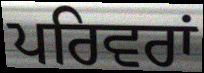
ਪਰਿਵਰਾਂ